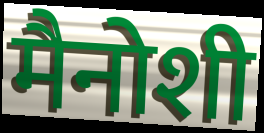
मैनोशी